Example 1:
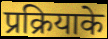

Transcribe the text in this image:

प्रक्रियाके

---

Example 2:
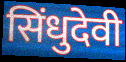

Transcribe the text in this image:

सिंधुदेवी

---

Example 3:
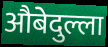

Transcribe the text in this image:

औबेदुल्ला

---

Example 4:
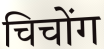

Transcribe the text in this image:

चिचोंग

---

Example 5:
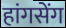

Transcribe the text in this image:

हांगसेंग